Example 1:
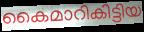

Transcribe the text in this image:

കൈമാറികിട്ടിയ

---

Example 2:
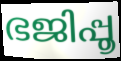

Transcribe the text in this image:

ഭജിപ്പൂ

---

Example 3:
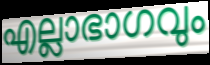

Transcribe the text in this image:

എല്ലാഭാഗവും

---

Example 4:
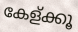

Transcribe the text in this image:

കേള്ക്കൂ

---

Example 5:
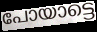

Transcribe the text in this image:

പോയാട്ടെ